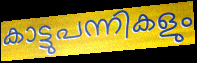
കാട്ടുപന്നികളും